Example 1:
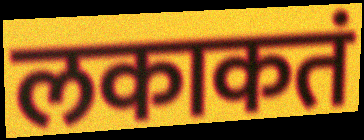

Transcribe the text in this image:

लकाकतं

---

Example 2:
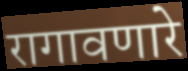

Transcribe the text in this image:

रागावणारे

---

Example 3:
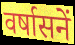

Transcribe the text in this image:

वर्षासनें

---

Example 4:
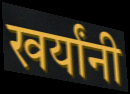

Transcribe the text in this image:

खर्यांनी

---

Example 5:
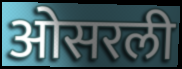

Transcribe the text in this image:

ओसरली